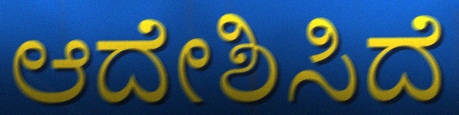
ಆದೇಶಿಸಿದೆ